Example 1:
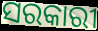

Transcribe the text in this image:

ସରକାରୀ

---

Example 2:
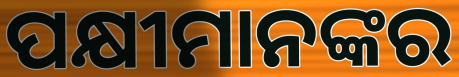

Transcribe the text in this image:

ପକ୍ଷୀମାନଙ୍କର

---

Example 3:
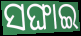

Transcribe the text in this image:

ସଙ୍ଘାଇ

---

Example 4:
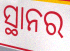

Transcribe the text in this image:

ସ୍ଥାନର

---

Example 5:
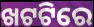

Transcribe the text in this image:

ଖଟଟିରେ